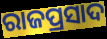
ରାଜପ୍ରସାଦ